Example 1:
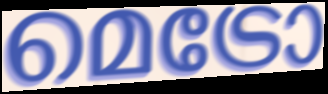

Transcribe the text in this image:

മെട്രോ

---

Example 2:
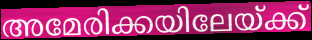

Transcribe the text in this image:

അമേരിക്കയിലേയ്ക്ക്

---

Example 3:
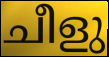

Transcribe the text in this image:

ചീളു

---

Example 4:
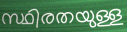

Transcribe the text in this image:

സ്ഥിരതയുള്ള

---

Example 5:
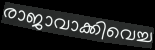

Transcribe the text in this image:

രാജാവാക്കിവെച്ച